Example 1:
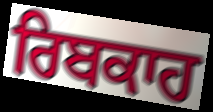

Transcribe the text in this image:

ਰਿਬਕਾਹ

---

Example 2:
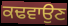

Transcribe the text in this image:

ਕਢਵਾਉਣ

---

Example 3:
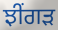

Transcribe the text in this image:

ਝੀਂਗੜ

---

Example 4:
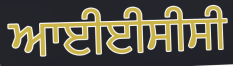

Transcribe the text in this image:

ਆਈਈਸੀਸੀ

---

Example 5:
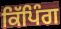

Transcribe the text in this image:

ਕਿੱਪਿੰਗ